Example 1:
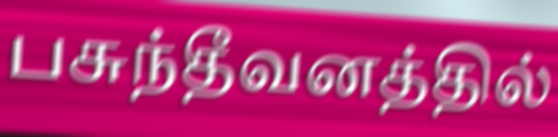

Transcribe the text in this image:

பசுந்தீவனத்தில்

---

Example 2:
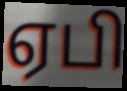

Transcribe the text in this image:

ஏபி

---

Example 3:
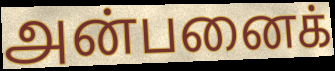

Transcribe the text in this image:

அன்பனைக்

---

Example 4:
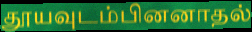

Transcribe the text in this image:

தூயவுடம்பினனாதல்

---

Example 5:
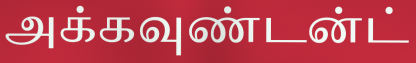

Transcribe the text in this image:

அக்கவுண்டன்ட்